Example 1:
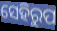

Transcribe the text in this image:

ସେହିରୁପ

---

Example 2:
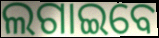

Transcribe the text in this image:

ଲଗାଇବେ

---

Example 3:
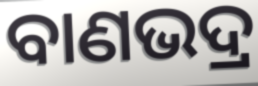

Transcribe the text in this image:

ବାଣଭଦ୍ର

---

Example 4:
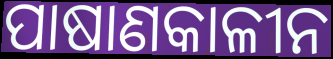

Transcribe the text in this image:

ପାଷାଣକାଳୀନ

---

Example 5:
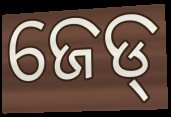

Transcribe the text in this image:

ଜେଡ୍